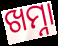
ଖମ୍ନା